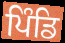
ਪਿੰਡਿ